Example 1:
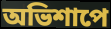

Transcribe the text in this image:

অভিশাপে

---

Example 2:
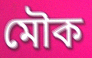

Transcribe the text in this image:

মৌক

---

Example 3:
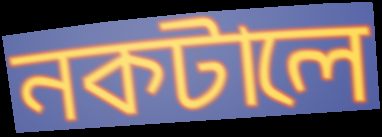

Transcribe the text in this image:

নকটালে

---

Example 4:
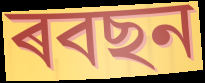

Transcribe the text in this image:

ৰবছন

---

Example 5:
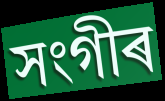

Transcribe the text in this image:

সংগীৰ